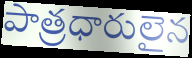
పాత్రధారులైన